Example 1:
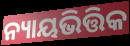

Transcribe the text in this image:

ନ୍ୟାୟଭିତ୍ତିକ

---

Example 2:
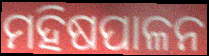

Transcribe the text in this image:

ମହିଷପାଳନ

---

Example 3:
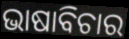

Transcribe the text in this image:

ଭାଷାବିଚାର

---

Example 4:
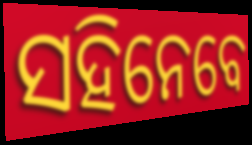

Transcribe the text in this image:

ସହିନେବେ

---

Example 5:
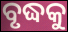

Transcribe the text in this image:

ବୃଦ୍ଧକୁ